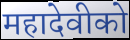
महादेवीको